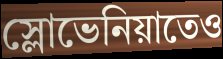
স্লোভেনিয়াতেও